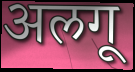
अलगू